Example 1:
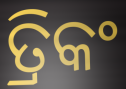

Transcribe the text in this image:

ତ୍ରିକଂ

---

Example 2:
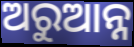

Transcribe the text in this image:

ଅରୁଆନ୍ନ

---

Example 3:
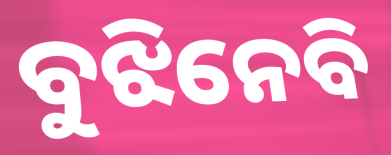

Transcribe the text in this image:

ବୁଝିନେବି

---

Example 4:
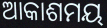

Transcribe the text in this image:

ଆକାଶମୟ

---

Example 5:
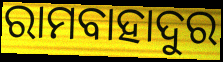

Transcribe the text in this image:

ରାମବାହାଦୁର